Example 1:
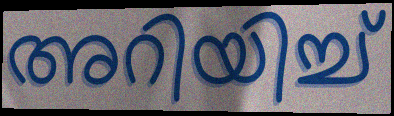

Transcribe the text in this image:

അറിയിച്ച്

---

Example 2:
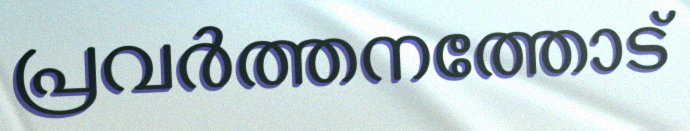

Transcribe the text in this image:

പ്രവർത്തനത്തോട്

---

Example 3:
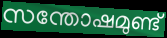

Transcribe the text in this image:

സന്തോഷമുണ്ട്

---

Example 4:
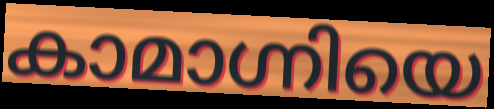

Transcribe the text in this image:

കാമാഗ്നിയെ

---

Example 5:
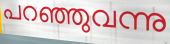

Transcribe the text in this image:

പറഞ്ഞുവന്നു